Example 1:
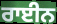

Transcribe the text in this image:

ਰਾਈਨ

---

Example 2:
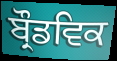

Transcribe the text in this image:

ਬ੍ਰੌਡਵਿਕ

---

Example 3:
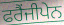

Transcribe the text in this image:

ਫਰੈਂਜੀਪੇਨ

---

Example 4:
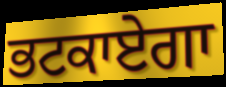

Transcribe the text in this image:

ਭਟਕਾਏਗਾ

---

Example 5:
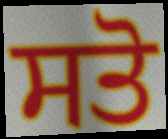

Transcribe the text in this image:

ਸਤੋ